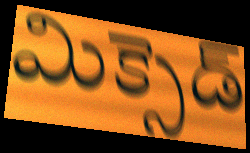
మిక్సెడ్